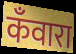
कँवारा